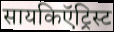
सायकिऍट्रिस्ट